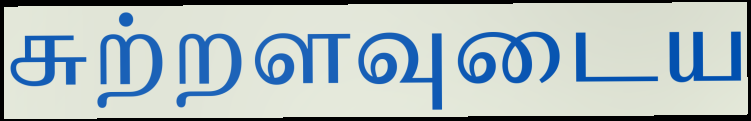
சுற்றளவுடைய